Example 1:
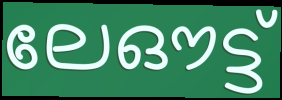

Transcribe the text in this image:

ലേഔട്ട്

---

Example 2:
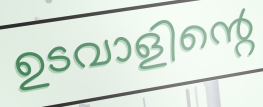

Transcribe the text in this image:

ഉടവാളിന്റെ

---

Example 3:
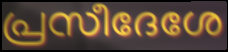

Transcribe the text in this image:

പ്രസീദേശേ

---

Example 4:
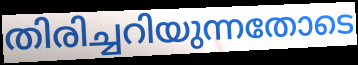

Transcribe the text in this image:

തിരിച്ചറിയുന്നതോടെ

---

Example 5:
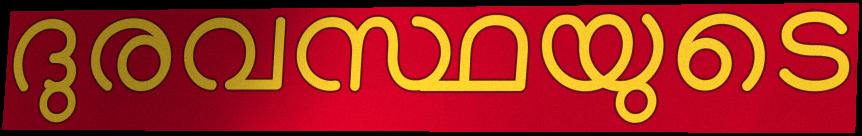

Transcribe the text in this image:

ദുരവസ്ഥയുടെ